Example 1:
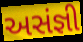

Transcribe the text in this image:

અસંજ્ઞી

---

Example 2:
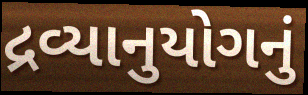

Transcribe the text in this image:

દ્રવ્યાનુયોગનું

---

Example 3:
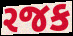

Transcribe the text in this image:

રજક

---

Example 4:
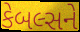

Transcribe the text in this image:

કેબલ્સને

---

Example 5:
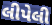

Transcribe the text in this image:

લીપેલી